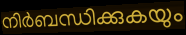
നിർബന്ധിക്കുകയും